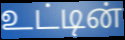
உட்டின்